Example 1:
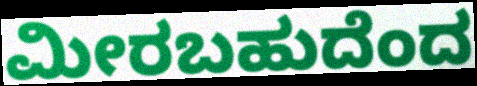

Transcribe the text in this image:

ಮೀರಬಹುದೆಂದ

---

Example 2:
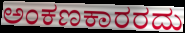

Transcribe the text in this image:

ಅಂಕಣಕಾರರದು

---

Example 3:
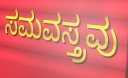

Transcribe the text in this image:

ಸಮವಸ್ತ್ರವು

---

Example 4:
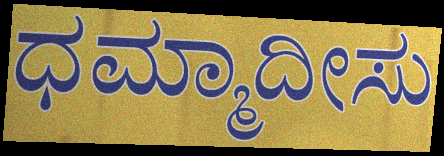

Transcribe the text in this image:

ಧಮ್ಮಾದೀಸು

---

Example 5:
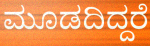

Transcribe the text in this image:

ಮೂಡದಿದ್ದರೆ